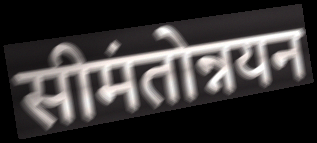
सीमंतोन्नयन